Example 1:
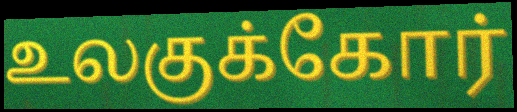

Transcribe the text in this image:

உலகுக்கோர்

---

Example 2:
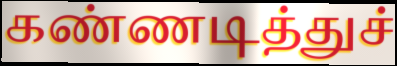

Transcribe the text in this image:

கண்ணடித்துச்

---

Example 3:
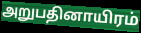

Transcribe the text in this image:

அறுபதினாயிரம்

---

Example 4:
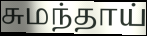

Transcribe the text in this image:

சுமந்தாய்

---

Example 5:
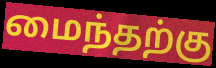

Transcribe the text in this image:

மைந்தற்கு